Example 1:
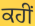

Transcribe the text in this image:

ਕਹੀਂ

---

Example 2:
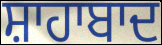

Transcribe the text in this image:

ਸ਼ਾਹਾਬਾਦ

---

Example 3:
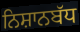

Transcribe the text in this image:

ਨਿਸ਼ਾਨਬੱਧ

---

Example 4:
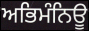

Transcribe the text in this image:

ਅਭਿਮੰਨਿਊ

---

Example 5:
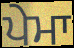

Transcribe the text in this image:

ਪੇਮਾ